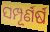
ସମ୍ପୂର୍ଣର୍ଷ